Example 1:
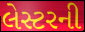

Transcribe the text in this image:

લેસ્ટરની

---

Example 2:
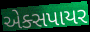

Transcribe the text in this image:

એક્સપાયર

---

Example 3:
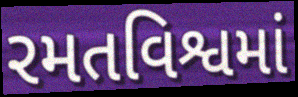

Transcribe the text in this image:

રમતવિશ્વમાં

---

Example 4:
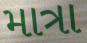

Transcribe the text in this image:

માત્રા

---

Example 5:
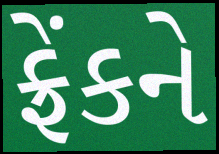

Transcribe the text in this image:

ફ્રેંકને